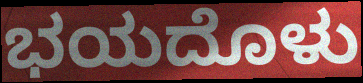
ಭಯದೊಳು